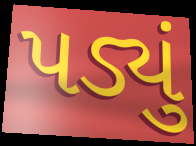
પડ્યું